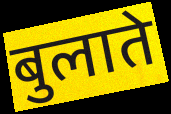
बुलाते